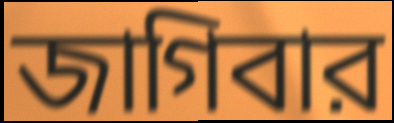
জাগিবার